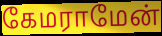
கேமராமேன்